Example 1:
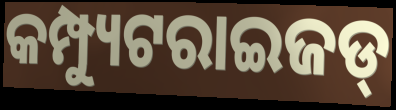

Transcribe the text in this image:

କମ୍ପ୍ୟୁଟରାଇଜଡ୍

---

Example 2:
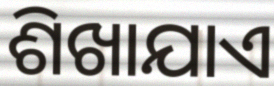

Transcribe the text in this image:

ଶିଖାଯାଏ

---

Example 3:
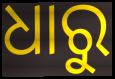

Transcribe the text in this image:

ଧାରୁ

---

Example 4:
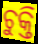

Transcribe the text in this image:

ଚୁକ୍ତି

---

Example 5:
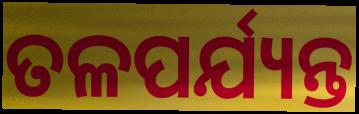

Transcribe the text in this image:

ତଳପର୍ଯ୍ୟନ୍ତ